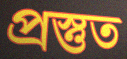
প্ৰস্তুত